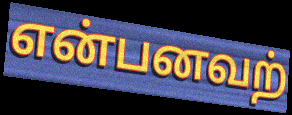
என்பனவற்